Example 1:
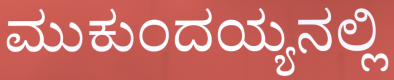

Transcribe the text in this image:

ಮುಕುಂದಯ್ಯನಲ್ಲಿ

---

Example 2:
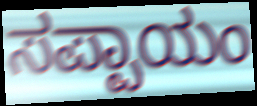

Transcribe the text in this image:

ಸಪ್ಪಾಯಂ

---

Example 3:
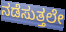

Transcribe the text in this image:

ನಡೆಸುತ್ತಲೇ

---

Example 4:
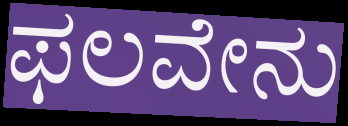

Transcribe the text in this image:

ಫಲವೇನು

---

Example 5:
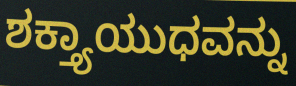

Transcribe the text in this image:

ಶಕ್ತ್ಯಾಯುಧವನ್ನು